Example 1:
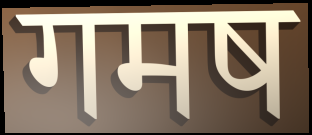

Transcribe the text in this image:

गमष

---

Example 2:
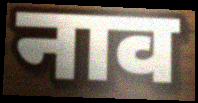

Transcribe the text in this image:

नाव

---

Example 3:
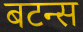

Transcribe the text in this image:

बटन्स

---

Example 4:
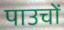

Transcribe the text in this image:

पाउचों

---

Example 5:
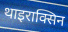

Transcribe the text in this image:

थाइराक्सिन